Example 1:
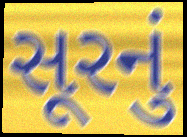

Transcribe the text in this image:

સૂરનું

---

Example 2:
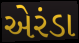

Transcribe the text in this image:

એરંડા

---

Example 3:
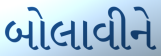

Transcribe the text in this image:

બોલાવીને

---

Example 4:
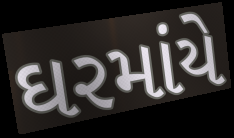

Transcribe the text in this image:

ઘરમાંયે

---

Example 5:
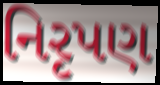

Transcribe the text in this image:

નિરૃપણ